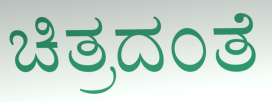
ಚಿತ್ರದಂತೆ